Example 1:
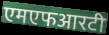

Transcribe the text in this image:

एमएफआरटी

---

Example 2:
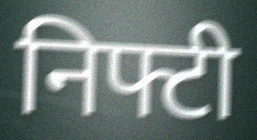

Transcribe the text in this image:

निफ्टी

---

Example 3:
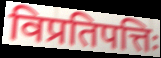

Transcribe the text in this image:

विप्रतिपत्तिः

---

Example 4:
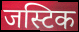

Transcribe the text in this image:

जस्टिक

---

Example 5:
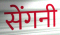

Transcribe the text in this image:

सेंगनी